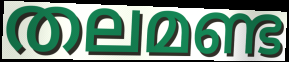
തലമണ്ട